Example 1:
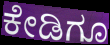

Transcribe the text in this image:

ಕೇಡಿಗೂ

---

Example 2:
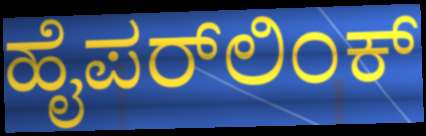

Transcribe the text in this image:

ಹೈಪರ್‌ಲಿಂಕ್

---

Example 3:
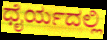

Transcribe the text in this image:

ಧೈರ್ಯದಲ್ಲಿ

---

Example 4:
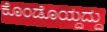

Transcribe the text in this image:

ಕೊಂಡೊಯ್ದದ್ದು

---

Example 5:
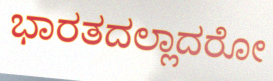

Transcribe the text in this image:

ಭಾರತದಲ್ಲಾದರೋ